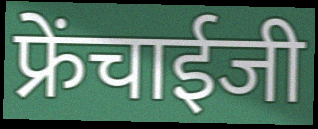
फ्रेंचाईजी